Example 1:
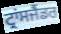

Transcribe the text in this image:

ਟ੍ਰਾਂਸਜੈਂਡਰ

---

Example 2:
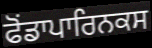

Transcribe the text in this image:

ਫੋਂਡਾਪਾਰਿਨਕਸ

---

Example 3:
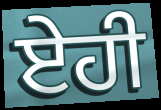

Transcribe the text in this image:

ਏਹੀ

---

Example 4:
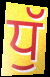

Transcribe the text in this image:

ਧੁੱ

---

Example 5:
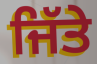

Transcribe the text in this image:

ਜਿੱਤੇ